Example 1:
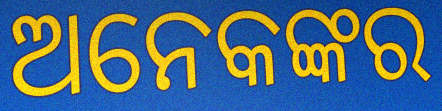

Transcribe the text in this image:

ଅନେକଙ୍କର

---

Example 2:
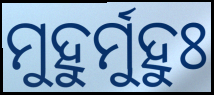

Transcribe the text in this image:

ମୁହୁର୍ମୁହୁଃ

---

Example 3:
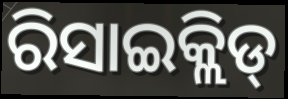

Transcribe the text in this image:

ରିସାଇକ୍ଲିଡ୍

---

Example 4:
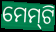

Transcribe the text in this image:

ମେମ୍‍ଟି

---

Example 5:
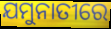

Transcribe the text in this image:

ଯମୁନାତୀରେ